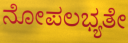
ನೋಪಲಭ್ಯತೇ